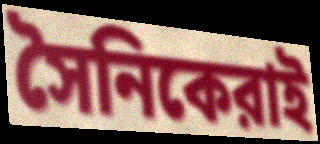
সৈনিকেরাই